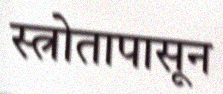
स्त्रोतापासून